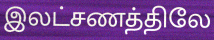
இலட்சணத்திலே